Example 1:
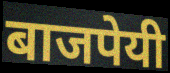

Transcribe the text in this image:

बाजपेयी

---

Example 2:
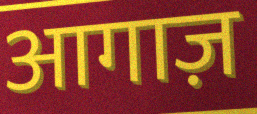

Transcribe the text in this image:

आगाज़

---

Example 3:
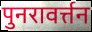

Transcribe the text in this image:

पुनरावर्त्तन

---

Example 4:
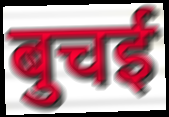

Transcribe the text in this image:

बुचई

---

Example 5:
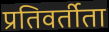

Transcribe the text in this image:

प्रतिवर्तीता